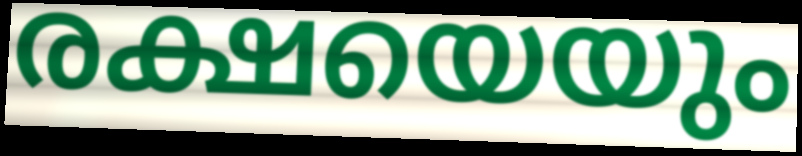
രക്ഷയെയും